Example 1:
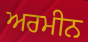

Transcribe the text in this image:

ਅਰਮੀਨ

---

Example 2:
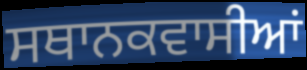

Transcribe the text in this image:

ਸਥਾਨਕਵਾਸੀਆਂ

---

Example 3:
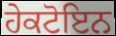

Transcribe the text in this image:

ਹੇਕਟੋਇਨ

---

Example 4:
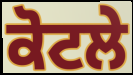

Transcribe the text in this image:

ਕੋਟਲੇ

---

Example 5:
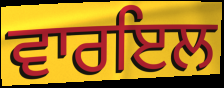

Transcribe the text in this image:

ਵਾਰਇਲ